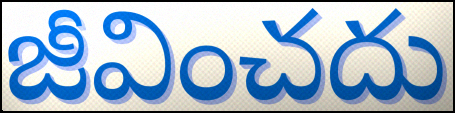
జీవించదు